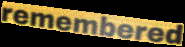
remembered